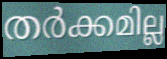
തർക്കമില്ല